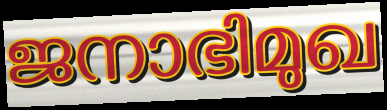
ജനാഭിമുഖ